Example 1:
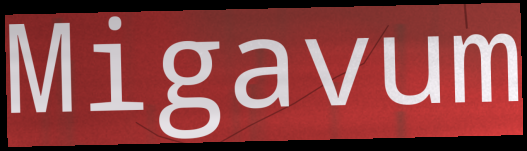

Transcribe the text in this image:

Migavum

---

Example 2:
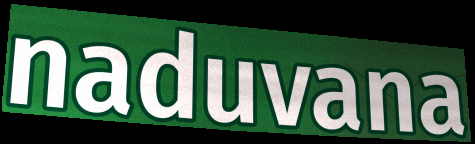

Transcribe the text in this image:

naduvana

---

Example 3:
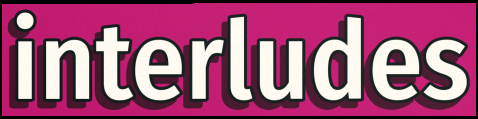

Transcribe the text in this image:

interludes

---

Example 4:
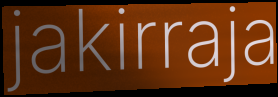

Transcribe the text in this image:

jakirraja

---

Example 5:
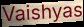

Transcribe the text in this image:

Vaishyas